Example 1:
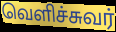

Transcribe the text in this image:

வெளிச்சுவர்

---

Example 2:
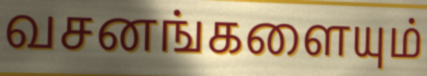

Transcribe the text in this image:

வசனங்களையும்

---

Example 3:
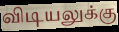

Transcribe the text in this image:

விடியலுக்கு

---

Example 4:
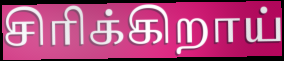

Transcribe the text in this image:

சிரிக்கிறாய்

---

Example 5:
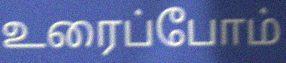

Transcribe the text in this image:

உரைப்போம்